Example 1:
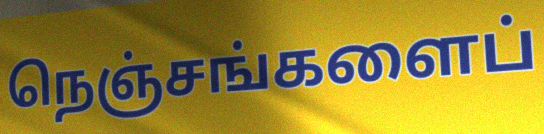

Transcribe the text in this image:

நெஞ்சங்களைப்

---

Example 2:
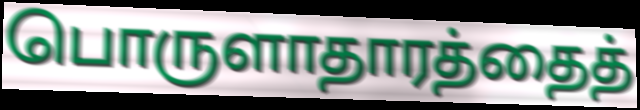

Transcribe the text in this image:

பொருளாதாரத்தைத்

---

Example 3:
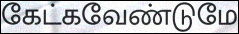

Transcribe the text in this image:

கேட்கவேண்டுமே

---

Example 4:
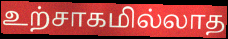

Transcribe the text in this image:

உற்சாகமில்லாத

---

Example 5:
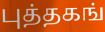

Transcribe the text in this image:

புத்தகங்